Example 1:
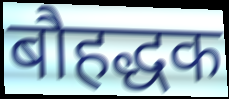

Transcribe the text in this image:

बौहद्धक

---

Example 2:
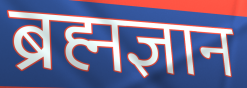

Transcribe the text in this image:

ब्रह्मज्ञान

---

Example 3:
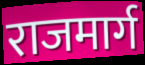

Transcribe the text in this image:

राजमार्ग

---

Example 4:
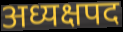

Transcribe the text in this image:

अध्यक्षपद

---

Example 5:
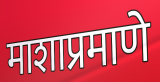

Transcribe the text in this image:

माशाप्रमाणे